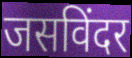
जसविंदर